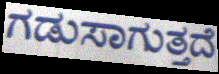
ಗಡುಸಾಗುತ್ತದೆ